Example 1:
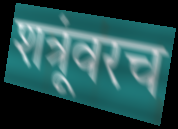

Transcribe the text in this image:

शत्रूंवरच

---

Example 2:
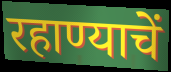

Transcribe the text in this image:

रहाण्याचें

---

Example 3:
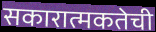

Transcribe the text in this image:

सकारात्मकतेची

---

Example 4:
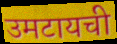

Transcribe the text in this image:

उमटायची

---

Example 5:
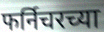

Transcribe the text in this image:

फर्निचरच्या